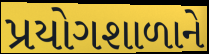
પ્રયોગશાળાને